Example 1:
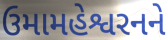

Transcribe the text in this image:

ઉમામહેશ્વરનને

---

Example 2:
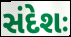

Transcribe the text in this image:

સંદેશઃ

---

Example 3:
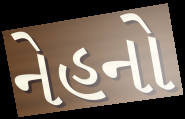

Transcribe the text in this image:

નેહનો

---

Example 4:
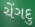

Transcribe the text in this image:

ચેંગદુ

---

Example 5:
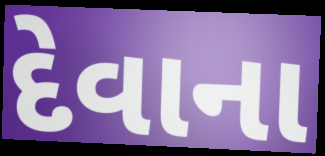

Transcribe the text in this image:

દેવાના